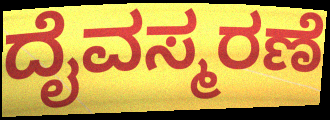
ದೈವಸ್ಮರಣೆ